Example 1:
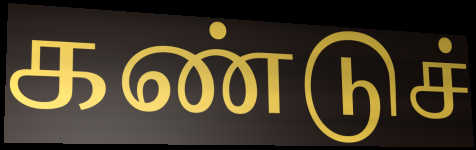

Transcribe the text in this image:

கண்டுச்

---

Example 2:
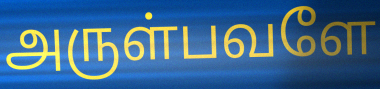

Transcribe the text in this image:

அருள்பவளே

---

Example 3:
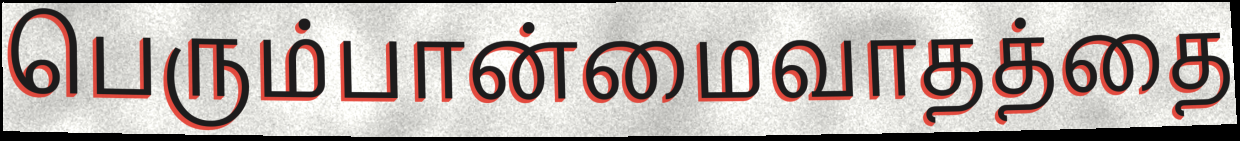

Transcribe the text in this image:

பெரும்பான்மைவாதத்தை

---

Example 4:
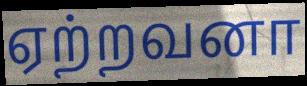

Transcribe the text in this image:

ஏற்றவனா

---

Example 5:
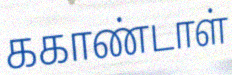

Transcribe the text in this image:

ககாண்டாள்